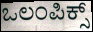
ಒಲಂಪಿಕ್ಸ್